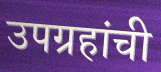
उपग्रहांची